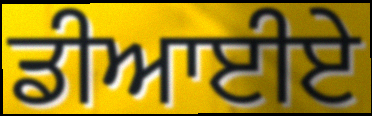
ਡੀਆਈਏ